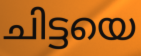
ചിട്ടയെ